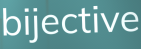
bijective